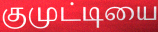
குமுட்டியை